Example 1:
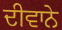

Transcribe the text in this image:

ਦੀਵਾਨੇ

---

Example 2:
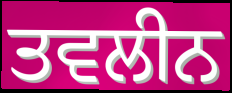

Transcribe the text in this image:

ਤਵਲੀਨ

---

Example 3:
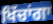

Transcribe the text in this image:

ਖਿੱਚਾਂਗਾ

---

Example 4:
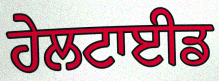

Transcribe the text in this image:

ਹੇਲਟਾਈਡ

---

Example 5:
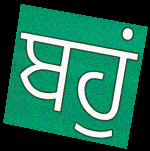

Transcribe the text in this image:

ਬਹੁਂ